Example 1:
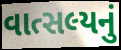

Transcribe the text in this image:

વાત્સલ્યનું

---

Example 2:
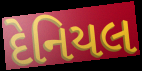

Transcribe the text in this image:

દેનિયલ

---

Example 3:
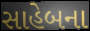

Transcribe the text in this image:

સાહેબના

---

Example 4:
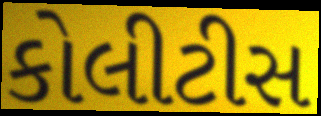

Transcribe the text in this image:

કોલીટીસ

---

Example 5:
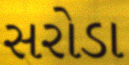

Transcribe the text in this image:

સરોડા